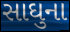
સાઘુના